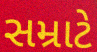
સમ્રાટે